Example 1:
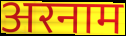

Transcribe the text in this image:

अरनाम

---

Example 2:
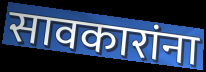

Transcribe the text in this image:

सावकारांना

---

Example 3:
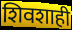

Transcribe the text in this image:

शिवशाही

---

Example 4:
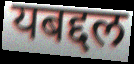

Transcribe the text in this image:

यबद्दल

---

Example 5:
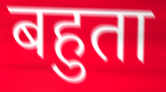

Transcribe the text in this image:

बहुता